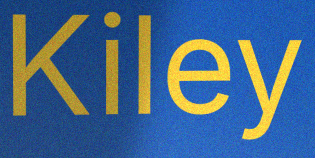
Kiley